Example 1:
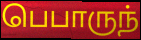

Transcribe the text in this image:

பெபாருந்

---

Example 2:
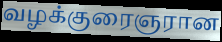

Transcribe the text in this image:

வழக்குரைஞரான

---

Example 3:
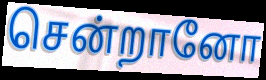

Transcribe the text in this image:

சென்றானோ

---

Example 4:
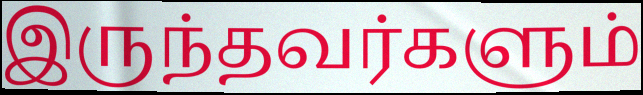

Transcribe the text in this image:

இருந்தவர்களும்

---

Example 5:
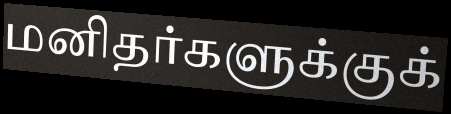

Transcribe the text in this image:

மனிதர்களுக்குக்